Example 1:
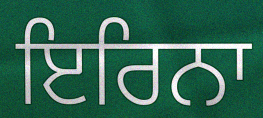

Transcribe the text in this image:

ਇਰਿਨਾ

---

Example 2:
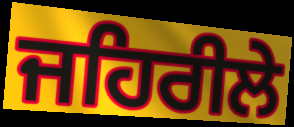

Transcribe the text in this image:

ਜਹਿਰੀਲੇ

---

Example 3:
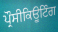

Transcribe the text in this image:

ਪ੍ਰੌਸੀਕਿਊਟਿੰਗ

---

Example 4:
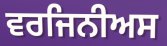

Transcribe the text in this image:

ਵਰਜਿਨੀਅਸ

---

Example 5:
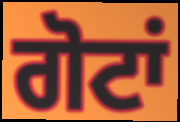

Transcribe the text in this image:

ਗੋਟਾਂ